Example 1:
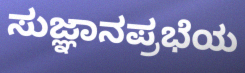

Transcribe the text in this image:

ಸುಜ್ಞಾನಪ್ರಭೆಯ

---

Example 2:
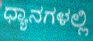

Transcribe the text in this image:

ಧ್ಯಾನಗಳಲ್ಲಿ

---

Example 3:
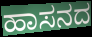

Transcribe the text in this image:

ಹಾಸನದ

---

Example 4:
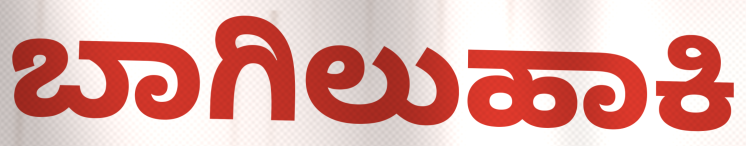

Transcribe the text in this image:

ಬಾಗಿಲುಹಾಕಿ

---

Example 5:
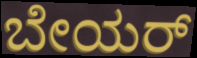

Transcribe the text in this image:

ಬೇಯರ್